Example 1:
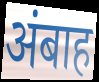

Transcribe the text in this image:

अंबाह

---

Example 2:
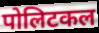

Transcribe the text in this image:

पोलिटकल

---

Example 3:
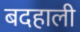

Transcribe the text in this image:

बदहाली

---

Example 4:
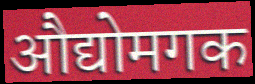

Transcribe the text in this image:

औद्योमगक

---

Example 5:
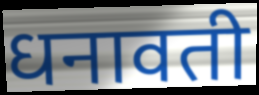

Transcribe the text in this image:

धनावती